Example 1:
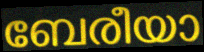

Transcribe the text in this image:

ബേരീയാ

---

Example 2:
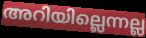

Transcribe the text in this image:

അറിയില്ലെന്നല്ല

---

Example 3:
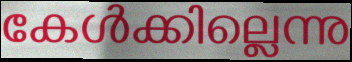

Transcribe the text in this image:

കേൾക്കില്ലെന്നു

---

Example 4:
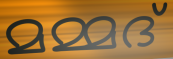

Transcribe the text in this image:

മമ്മദ്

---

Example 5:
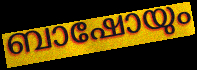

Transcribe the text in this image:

ബാഷോയും